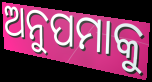
ଅନୁପମାକୁ